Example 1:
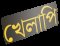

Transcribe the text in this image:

খেলাপি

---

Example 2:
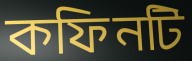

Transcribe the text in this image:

কফিনটি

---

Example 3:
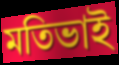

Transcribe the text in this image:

মতিভাই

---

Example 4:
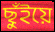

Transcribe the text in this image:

ছুঁইয়ে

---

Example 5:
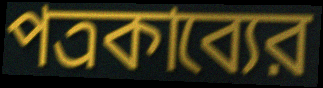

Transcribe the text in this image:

পত্রকাব্যের